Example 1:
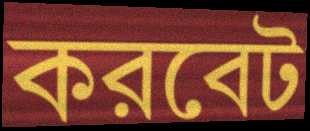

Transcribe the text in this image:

করবেট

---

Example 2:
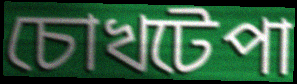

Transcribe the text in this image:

চোখটেপা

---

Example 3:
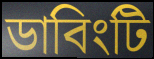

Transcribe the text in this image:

ডাবিংটি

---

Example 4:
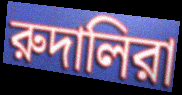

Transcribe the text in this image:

রুদালিরা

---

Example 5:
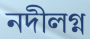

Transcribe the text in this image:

নদীলগ্ন